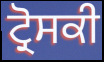
ਟ੍ਰੋਸਕੀ